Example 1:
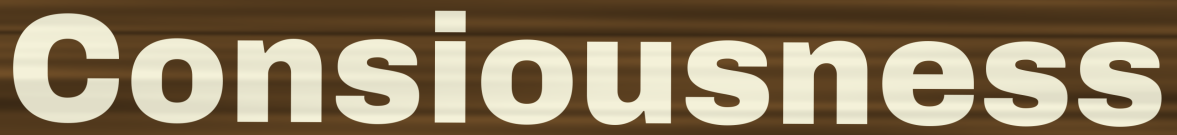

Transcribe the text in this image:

Consiousness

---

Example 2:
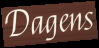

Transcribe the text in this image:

Dagens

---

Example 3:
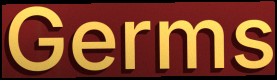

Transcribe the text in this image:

Germs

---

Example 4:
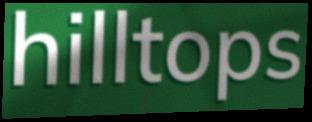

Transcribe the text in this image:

hilltops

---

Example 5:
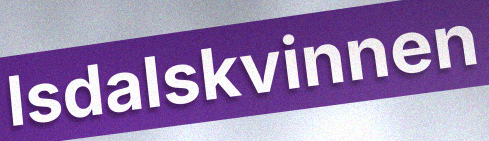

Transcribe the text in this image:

Isdalskvinnen